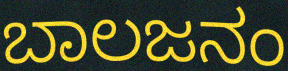
ಬಾಲಜನಂ